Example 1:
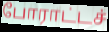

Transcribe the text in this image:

போராட்டச்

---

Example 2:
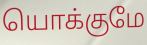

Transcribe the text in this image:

யொக்குமே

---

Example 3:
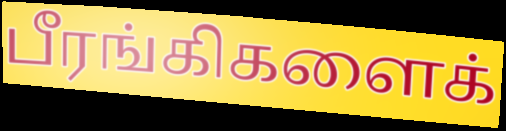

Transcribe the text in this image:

பீரங்கிகளைக்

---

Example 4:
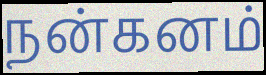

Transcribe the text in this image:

நன்கனம்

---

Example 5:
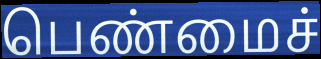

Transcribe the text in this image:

பெண்மைச்